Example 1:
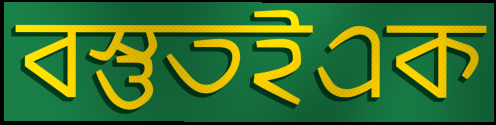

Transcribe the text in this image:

বস্তুতইএক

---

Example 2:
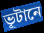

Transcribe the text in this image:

ভূটানে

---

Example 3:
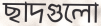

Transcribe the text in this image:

ছাদগুলো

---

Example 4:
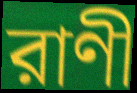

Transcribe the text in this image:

রাণী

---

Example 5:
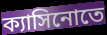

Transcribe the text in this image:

ক্যাসিনোতে